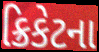
ક્રિકેટના